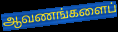
ஆவணங்களைப்